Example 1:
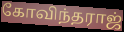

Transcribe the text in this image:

கோவிந்தராஜ்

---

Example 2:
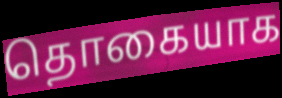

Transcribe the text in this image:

தொகையாக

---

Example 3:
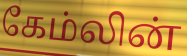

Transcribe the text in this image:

கேம்லின்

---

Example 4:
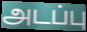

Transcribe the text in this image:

அடப்பு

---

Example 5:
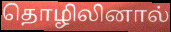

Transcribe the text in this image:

தொழிலினால்